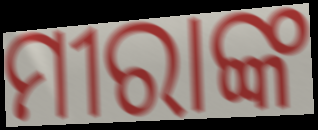
ମୀରାଙ୍କ